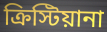
ক্রিস্টিয়ানা